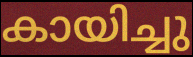
കായിച്ചു